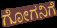
ಗೋಗನಿಗೆ